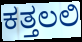
ಕತ್ತಲಲಿ